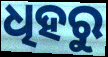
ଧିହରୁ